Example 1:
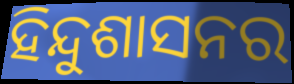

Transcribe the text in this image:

ହିନ୍ଦୁଶାସନର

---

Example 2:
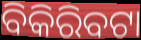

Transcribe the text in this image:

ବିକିରିବଟା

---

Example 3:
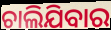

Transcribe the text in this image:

ଚାଲିଯିବାର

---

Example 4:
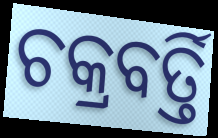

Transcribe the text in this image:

ଚକ୍ରବର୍ତ୍ତି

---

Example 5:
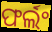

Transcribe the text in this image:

ଫର୍ଲଂ